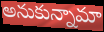
అనుకున్నామా